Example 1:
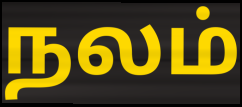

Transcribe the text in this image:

நலம்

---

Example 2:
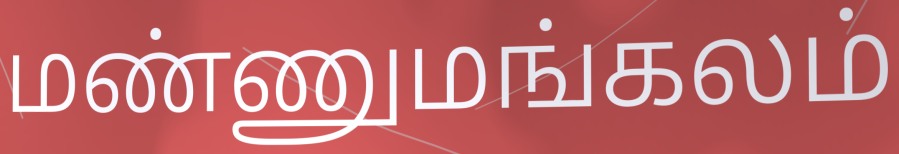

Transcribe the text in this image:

மண்ணுமங்கலம்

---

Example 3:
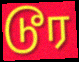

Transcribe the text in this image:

டூர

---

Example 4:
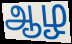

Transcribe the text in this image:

ஆழ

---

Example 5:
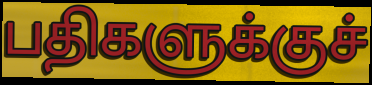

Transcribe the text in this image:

பதிகளுக்குச்